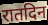
रातदिन